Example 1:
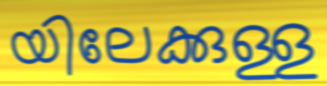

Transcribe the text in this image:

യിലേക്കുള്ള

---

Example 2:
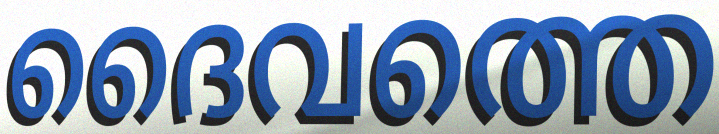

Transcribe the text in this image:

ദൈവത്തെ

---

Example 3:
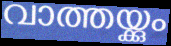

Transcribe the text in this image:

വാത്തയ്ക്കും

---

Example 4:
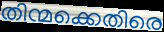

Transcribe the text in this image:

തിന്മക്കെതിരെ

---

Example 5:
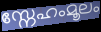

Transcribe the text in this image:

സ്നേഹംമൂലം